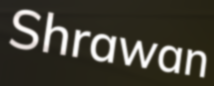
Shrawan